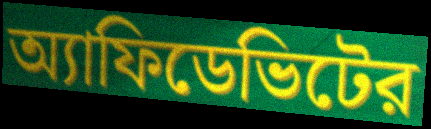
অ্যাফিডেভিটের